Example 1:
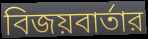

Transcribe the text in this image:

বিজয়বার্তার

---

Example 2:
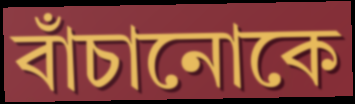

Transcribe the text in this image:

বাঁচানোকে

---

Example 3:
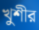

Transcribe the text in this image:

খুশীর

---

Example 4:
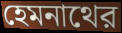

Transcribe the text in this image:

হেমনাথের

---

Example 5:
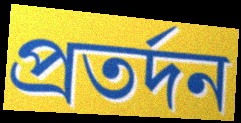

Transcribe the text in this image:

প্রতর্দন